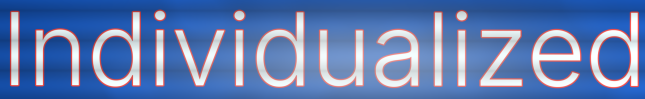
Individualized